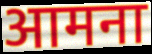
आमना